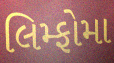
લિમ્ફોમા